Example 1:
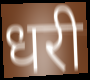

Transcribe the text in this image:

धरी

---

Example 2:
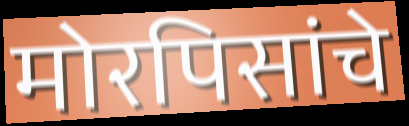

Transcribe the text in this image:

मोरपिसांचे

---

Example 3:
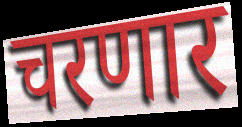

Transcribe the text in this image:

चरणार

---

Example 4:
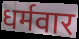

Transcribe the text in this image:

धर्मवार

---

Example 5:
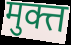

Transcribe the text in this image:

मुक्त